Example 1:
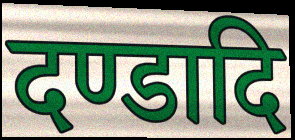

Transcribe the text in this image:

दण्डादि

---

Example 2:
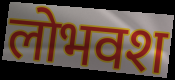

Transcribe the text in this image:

लोभवश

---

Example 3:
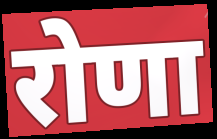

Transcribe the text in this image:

रोणा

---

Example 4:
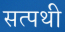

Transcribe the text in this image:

सत्पथी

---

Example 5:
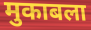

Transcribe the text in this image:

मुकाबला